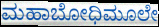
ಮಹಾಬೋಧಿಮೂಲೇ